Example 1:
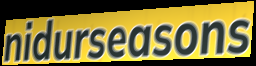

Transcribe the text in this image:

nidurseasons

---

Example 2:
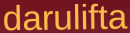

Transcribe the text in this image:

darulifta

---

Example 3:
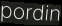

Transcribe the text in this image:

pordin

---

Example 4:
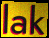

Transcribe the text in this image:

lak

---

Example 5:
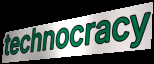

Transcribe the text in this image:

technocracy